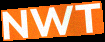
NWT